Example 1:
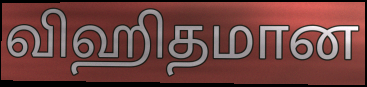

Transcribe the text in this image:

விஹிதமான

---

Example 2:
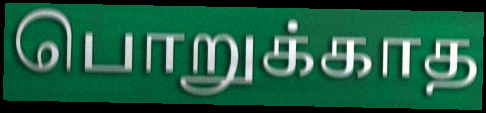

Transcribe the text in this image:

பொறுக்காத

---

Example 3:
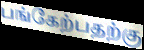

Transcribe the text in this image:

பங்கேற்பதற்கு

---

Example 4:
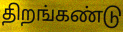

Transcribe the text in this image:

திறங்கண்டு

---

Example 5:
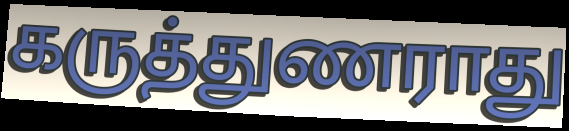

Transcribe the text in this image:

கருத்துணராது